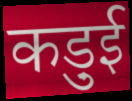
कड़ुई